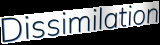
Dissimilation